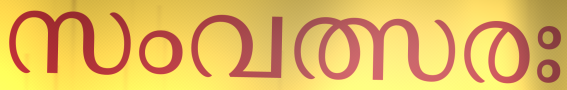
സംവത്സരഃ